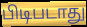
பிடிபடாது